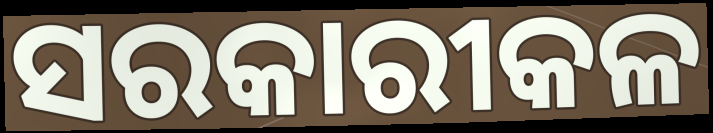
ସରକାରୀକଳ